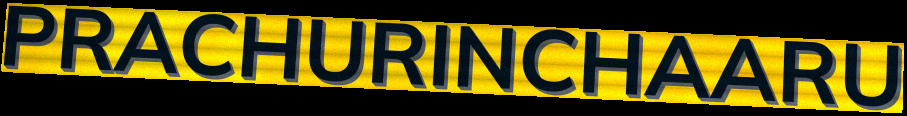
PRACHURINCHAARU